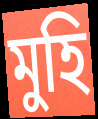
মুহি